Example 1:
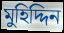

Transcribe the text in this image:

মুহিদ্দিন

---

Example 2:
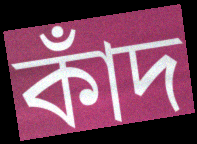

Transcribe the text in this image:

কাঁদ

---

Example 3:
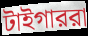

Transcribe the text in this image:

টাইগাররা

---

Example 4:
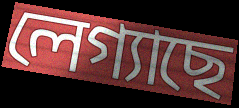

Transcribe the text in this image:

লেগ্যাছে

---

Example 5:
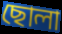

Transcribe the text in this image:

ছোলা